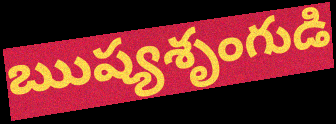
ఋష్యశృంగుడి